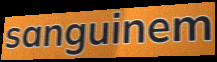
sanguinem